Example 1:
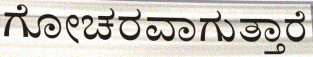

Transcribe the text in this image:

ಗೋಚರವಾಗುತ್ತಾರೆ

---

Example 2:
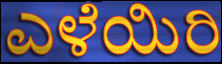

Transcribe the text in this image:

ಎಳೆಯಿರಿ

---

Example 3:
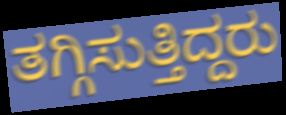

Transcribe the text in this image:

ತಗ್ಗಿಸುತ್ತಿದ್ದರು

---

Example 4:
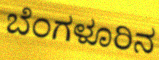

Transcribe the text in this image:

ಬೆಂಗಳೂರಿನ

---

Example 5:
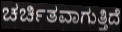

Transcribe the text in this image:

ಚರ್ಚಿತವಾಗುತ್ತಿದೆ